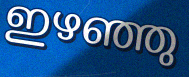
ഇഴഞ്ഞു